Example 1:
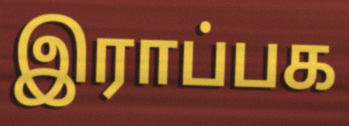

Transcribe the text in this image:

இராப்பக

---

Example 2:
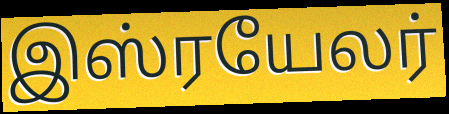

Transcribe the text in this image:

இஸ்ரயேலர்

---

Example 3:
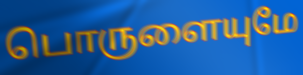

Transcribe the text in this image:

பொருளையுமே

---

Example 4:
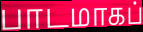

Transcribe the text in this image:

பாடமாகப்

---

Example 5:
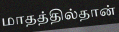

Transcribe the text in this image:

மாதத்தில்தான்